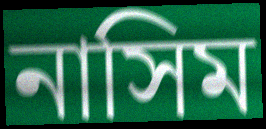
নাসিম